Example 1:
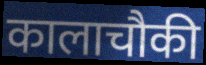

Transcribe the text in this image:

कालाचौकी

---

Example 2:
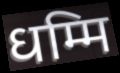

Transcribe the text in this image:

धम्मि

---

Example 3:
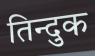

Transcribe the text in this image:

तिन्दुक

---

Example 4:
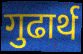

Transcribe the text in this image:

गुढार्थ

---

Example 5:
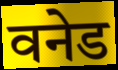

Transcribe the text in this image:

वनेड